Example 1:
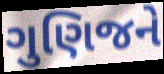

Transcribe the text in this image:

ગુણિજને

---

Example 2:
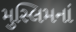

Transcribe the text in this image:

મુસ્લિમનાં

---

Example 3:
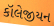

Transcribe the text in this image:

કૉલેજીયન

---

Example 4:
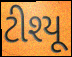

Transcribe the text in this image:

ટીશ્યૂ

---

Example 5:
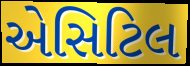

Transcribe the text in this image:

એસિટિલ